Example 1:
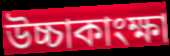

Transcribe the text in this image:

উচ্চাকাংক্ষা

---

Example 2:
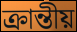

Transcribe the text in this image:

ক্ৰান্তীয়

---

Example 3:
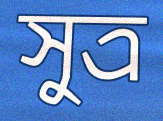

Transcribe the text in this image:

সুত্ৰ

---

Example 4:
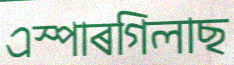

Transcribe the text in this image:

এস্পাৰগিলাছ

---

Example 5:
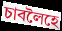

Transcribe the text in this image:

চাবলৈহে